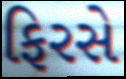
ફિરસે